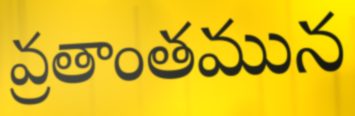
వ్రతాంతమున